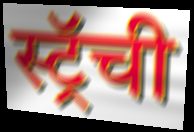
स्ट्रॅची